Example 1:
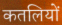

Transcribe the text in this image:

कतलियों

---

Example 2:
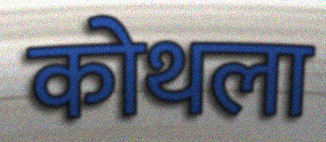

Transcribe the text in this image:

कोथला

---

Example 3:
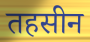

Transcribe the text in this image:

तहसीन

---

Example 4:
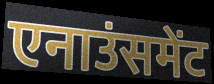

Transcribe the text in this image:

एनाउंसमेंट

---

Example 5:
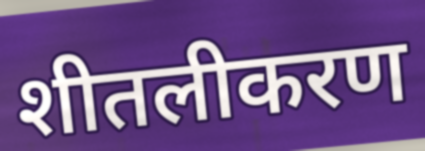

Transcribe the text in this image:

शीतलीकरण